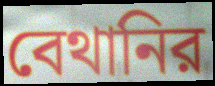
বেথানির